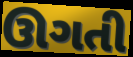
ઊગતી